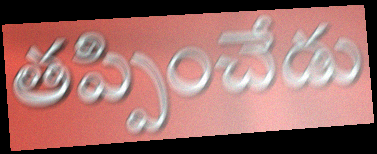
తప్పించేడు